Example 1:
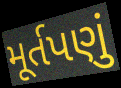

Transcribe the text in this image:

મૂર્તપણું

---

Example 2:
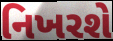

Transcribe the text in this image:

નિખરશે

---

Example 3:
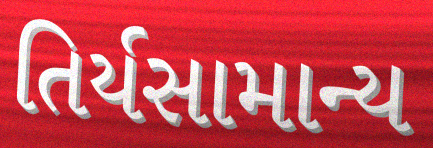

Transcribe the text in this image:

તિર્યસામાન્ય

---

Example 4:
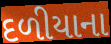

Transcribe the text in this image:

દળીયાના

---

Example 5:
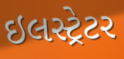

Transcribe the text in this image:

ઇલસ્ટ્રેટર